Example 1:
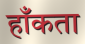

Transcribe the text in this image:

हाँकता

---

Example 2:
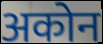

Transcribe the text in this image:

अकोन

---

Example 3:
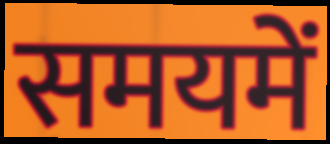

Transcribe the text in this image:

समयमें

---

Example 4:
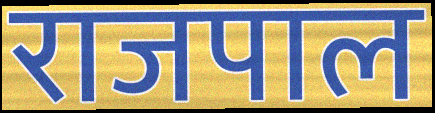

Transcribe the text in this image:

राजपाल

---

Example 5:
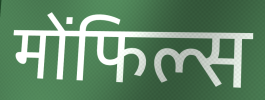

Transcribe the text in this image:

मोंफिल्स